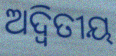
ଅଦ୍ୱିତୀୟ